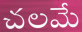
చలమే